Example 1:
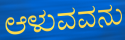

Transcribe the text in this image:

ಆಳುವವನು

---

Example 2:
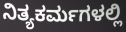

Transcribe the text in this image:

ನಿತ್ಯಕರ್ಮಗಳಲ್ಲಿ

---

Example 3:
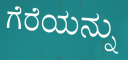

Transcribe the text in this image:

ಗೆರೆಯನ್ನು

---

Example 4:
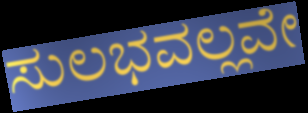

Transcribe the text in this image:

ಸುಲಭವಲ್ಲವೇ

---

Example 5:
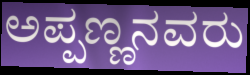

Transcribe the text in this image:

ಅಪ್ಪಣ್ಣನವರು